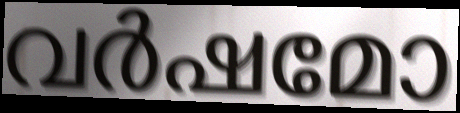
വർഷമോ